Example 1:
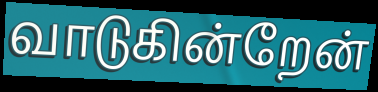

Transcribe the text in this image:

வாடுகின்றேன்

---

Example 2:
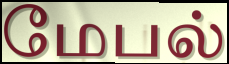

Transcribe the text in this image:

மேபல்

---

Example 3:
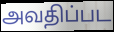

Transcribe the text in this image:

அவதிப்பட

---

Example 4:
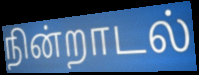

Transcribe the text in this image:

நின்றாடல்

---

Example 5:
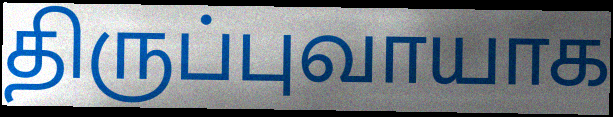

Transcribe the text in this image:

திருப்புவாயாக